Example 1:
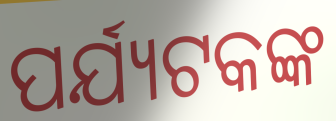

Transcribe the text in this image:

ପର୍ଯ୍ୟଟକଙ୍କ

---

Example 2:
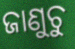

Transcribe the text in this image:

ଜାଣୁଚୁ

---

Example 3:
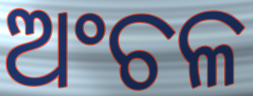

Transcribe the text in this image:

ଅଂଚଳ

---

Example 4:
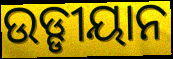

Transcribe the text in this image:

ଉଡ୍ଡୀୟାନ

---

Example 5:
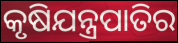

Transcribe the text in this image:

କୃଷିଯନ୍ତ୍ରପାତିର